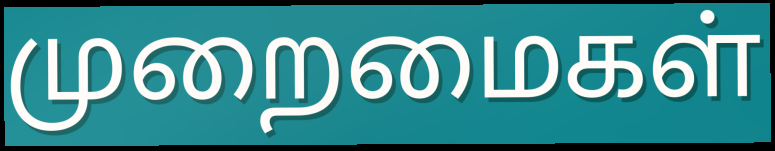
முறைமைகள்